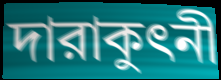
দারাকুৎনী